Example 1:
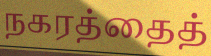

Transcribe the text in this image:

நகரத்தைத்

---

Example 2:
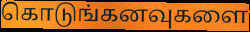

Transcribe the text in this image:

கொடுங்கனவுகளை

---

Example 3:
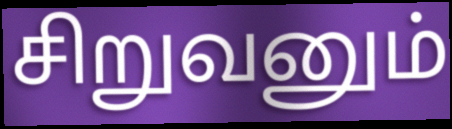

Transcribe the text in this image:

சிறுவனும்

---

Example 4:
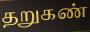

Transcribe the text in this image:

தறுகண்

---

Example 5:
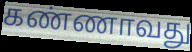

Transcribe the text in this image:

கண்ணாவது